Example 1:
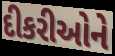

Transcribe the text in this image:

દીકરીઓને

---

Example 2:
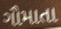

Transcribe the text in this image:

ગૌમાતા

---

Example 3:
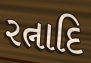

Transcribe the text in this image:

રત્નાદિ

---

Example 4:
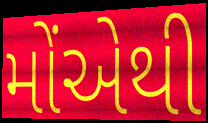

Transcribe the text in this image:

મોંએથી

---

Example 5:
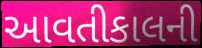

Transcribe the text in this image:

આવતીકાલની